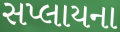
સપ્લાયના